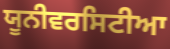
ਯੂਨੀਵਰਸਿਟੀਆ